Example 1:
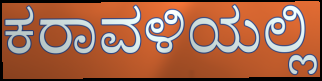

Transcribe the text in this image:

ಕರಾವಳಿಯಲ್ಲಿ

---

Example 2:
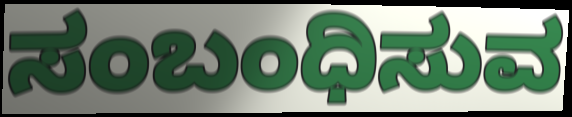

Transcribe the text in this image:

ಸಂಬಂಧಿಸುವ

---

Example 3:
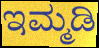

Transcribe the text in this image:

ಇಮ್ಮಡಿ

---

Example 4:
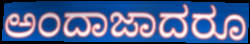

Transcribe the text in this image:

ಅಂದಾಜಾದರೂ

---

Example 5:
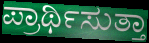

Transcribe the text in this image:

ಪ್ರಾರ್ಥಿಸುತ್ತಾ